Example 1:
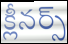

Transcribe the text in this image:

క్లీనర్స్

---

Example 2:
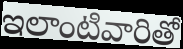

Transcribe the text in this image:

ఇలాంటివారితో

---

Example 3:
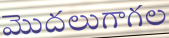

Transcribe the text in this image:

మొదలుగాగల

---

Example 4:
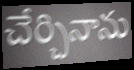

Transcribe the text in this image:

చేర్చినాను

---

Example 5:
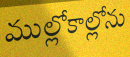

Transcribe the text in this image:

ముల్లోకాల్లోను